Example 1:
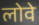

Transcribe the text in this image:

लोवे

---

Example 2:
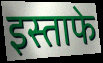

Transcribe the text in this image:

इस्ताफे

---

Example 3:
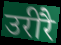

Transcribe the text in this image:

उरीरै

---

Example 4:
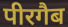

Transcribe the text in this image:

पीरगैब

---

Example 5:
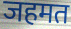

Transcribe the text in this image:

जहमत